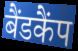
बैंडकैंप